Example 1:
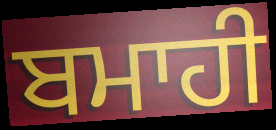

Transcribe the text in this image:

ਬਮਾਹੀ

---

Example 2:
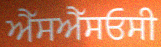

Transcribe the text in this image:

ਐੱਸਐੱਸਓਸੀ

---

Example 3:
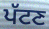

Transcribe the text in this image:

ਪੱਟਣ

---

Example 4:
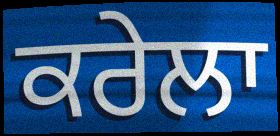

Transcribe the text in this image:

ਕਰੇਲਾ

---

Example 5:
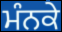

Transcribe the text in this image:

ਮੰਨਕੇ